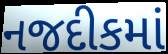
નજદીકમાં